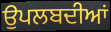
ਉਪਲਬਦੀਆਂ